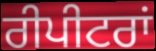
ਰੀਪੀਟਰਾਂ